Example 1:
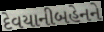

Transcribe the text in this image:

દેવયાનીબહેનને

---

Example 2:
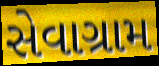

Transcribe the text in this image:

સેવાગ્રામ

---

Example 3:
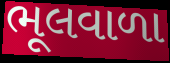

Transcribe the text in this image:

ભૂલવાળા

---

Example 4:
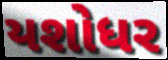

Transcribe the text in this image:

યશોધર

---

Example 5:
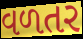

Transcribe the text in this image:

વળતર